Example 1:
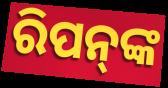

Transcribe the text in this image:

ରିପନ୍‍ଙ୍କ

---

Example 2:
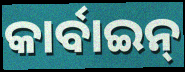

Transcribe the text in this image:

କାର୍ବାଇନ୍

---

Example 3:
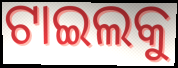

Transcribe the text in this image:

ଟାଇଲକୁ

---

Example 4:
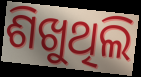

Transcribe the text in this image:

ଶିଖୁଥିଲି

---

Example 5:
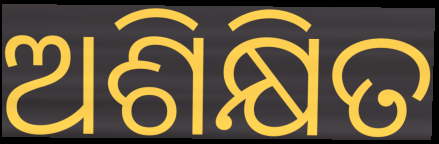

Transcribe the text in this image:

ଅଶିକ୍ଷିତ